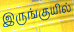
இருங்குயில்